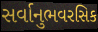
સર્વાનુભવરસિક